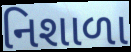
નિશાળા